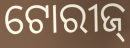
ଟୋରୀଜ୍